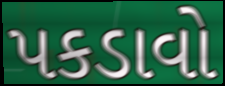
પકડાવો